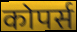
कोपर्स